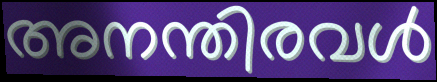
അനന്തിരവൾ